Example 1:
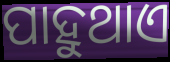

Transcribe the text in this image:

ପାହୁଥାଏ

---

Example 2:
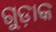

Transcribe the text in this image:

ଗୁଡ଼ାକ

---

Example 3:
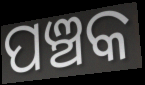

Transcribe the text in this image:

ପଞ୍ଚକ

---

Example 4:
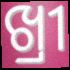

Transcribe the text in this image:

ଖ୍ରୀ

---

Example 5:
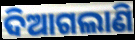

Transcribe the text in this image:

ଦିଆଗଲାଣି